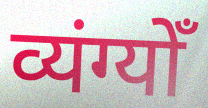
व्यंग्योँ